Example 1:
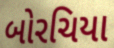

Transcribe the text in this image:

બોરચિયા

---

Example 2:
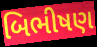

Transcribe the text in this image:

બિભીષણ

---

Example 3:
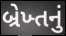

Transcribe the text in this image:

બ્રેખ્તનું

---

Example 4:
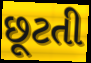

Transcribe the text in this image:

છૂટતી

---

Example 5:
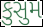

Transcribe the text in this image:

કુસુમ